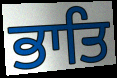
ਭਾਤਿ